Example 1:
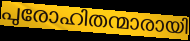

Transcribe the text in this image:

പുരോഹിതന്മാരായി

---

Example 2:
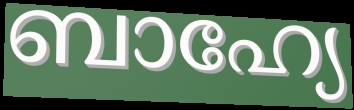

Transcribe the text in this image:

ബാഹ്യേ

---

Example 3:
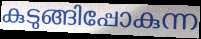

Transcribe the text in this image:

കുടുങ്ങിപ്പോകുന്ന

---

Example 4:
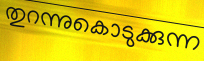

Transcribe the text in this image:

തുറന്നുകൊടുക്കുന്ന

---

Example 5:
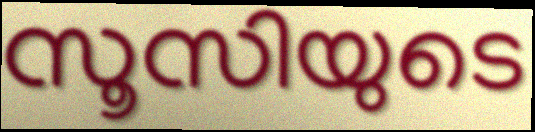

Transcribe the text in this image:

സൂസിയുടെ